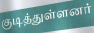
குடித்துள்ளனர்